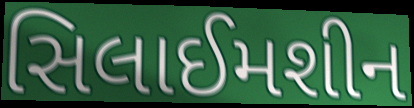
સિલાઈમશીન